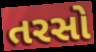
તરસો